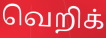
வெறிக்